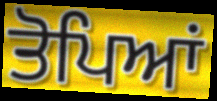
ਤੋਪਿਆਂ